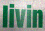
livin